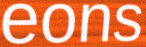
eons